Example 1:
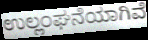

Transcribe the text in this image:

ಉಲ್ಲಂಘನೆಯಾಗಿವೆ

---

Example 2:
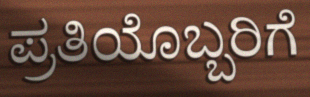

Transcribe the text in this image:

ಪ್ರತಿಯೊಬ್ಬರಿಗೆ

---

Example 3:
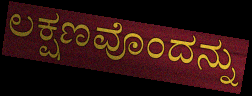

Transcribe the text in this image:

ಲಕ್ಷಣವೊಂದನ್ನು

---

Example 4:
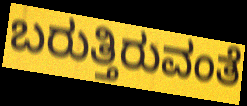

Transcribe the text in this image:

ಬರುತ್ತಿರುವಂತೆ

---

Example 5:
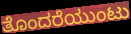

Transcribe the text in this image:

ತೊಂದರೆಯುಂಟು